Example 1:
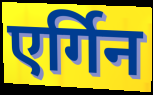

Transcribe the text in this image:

एर्गिन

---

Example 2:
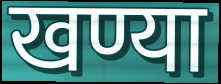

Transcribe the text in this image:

खण्या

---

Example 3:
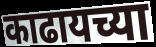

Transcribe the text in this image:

काढायच्या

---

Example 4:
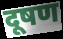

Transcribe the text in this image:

दूषण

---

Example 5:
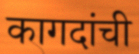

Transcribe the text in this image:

कागदांची